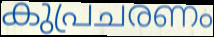
കുപ്രചരണം